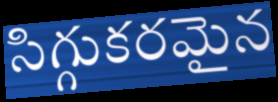
సిగ్గుకరమైన